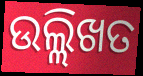
ଉଲ୍ଲିଖତ